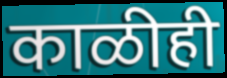
काळीही